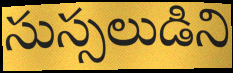
సుస్సలుడిని